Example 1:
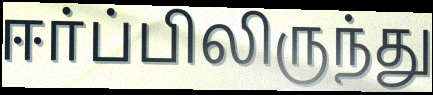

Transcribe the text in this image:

ஈர்ப்பிலிருந்து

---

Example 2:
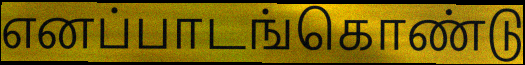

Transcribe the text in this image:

எனப்பாடங்கொண்டு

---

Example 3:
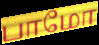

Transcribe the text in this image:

பாமோ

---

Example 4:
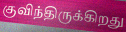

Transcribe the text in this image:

குவிந்திருக்கிறது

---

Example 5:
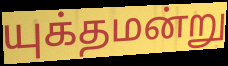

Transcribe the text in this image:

யுக்தமன்று